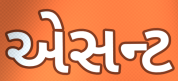
એસન્ટ